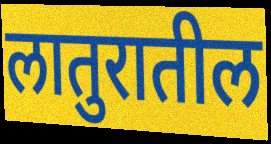
लातुरातील